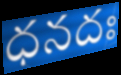
ధనదః